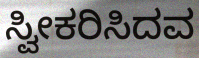
ಸ್ವೀಕರಿಸಿದವ